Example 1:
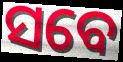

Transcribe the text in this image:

ସବେ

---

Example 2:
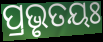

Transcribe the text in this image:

ପ୍ରଭୃତୟଃ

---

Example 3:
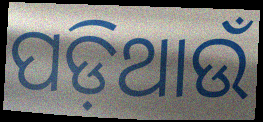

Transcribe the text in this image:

ପଡ଼ିଥାଉଁ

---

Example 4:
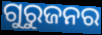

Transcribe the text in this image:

ଗୁରୁଜନର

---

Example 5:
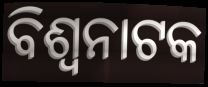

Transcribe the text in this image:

ବିଶ୍ୱନାଟକ